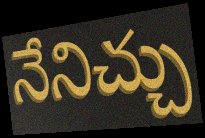
నేనిచ్చు